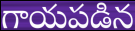
గాయపడిన